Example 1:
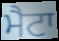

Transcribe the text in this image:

ਮੈਟਾ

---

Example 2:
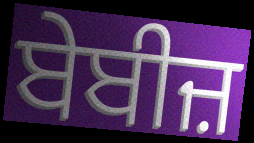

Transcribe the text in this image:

ਬੇਬੀਜ਼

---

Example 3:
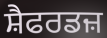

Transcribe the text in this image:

ਸ਼ੈਫਰਡਜ਼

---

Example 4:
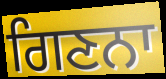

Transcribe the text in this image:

ਗਿਣਨਾ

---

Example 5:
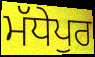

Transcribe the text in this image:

ਮੱਧੇਪੁਰ